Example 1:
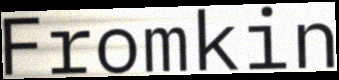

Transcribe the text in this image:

Fromkin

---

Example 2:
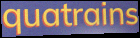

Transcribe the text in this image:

quatrains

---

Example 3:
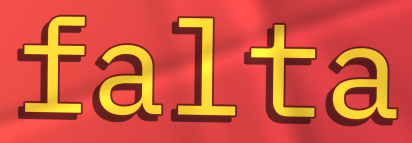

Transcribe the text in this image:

falta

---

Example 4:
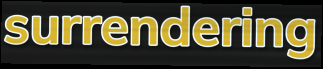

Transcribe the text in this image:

surrendering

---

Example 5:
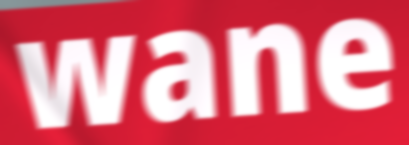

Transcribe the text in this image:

wane